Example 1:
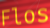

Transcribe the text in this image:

Flos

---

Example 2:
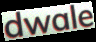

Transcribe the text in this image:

dwale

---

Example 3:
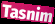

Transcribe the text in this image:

Tasnim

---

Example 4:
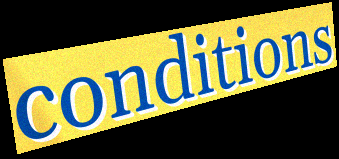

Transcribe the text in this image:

conditions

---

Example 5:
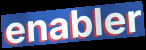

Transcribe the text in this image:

enabler